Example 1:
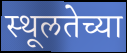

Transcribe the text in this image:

स्थूलतेच्या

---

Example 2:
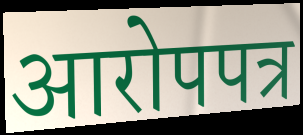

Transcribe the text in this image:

आरोपपत्र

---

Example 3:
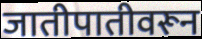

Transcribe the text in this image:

जातीपातीवरून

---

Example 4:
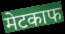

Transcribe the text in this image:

मेटकाफ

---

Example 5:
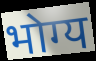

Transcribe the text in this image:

भोग्य